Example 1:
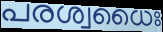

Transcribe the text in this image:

പരശ്വധൈഃ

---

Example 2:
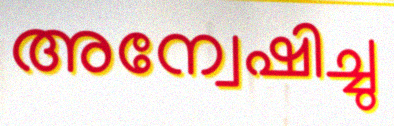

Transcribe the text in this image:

അന്വേഷിച്ചു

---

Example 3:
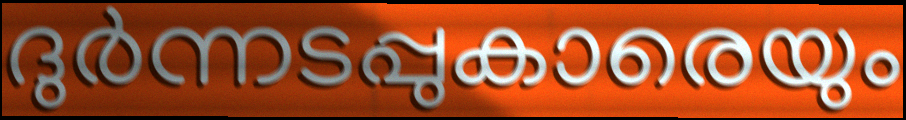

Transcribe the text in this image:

ദുർന്നടപ്പുകാരെയും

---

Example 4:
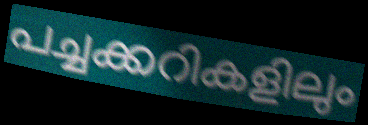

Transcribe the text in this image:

പച്ചക്കറികളിലും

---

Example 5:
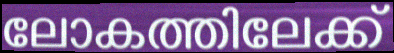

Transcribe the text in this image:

ലോകത്തിലേക്ക്